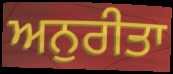
ਅਨੁਰੀਤਾ